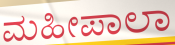
ಮಹೀಪಾಲಾ